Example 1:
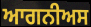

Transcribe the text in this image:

ਆਗਨੀਅਸ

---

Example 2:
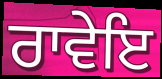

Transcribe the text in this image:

ਰਾਵੇਇ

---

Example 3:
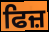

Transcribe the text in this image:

ਫਿਜ਼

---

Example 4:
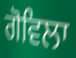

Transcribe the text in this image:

ਗੋਵਿਲਾ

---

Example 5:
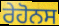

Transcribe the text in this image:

ਰੇਹੋਨਸ